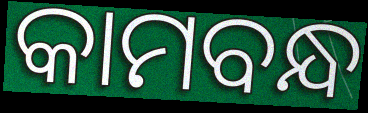
କାମବନ୍ଧ